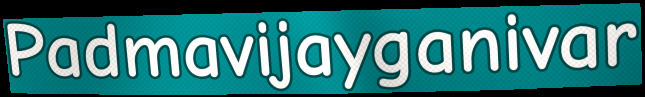
Padmavijayganivar